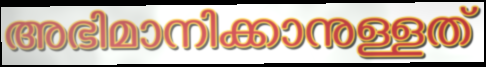
അഭിമാനിക്കാനുള്ളത്